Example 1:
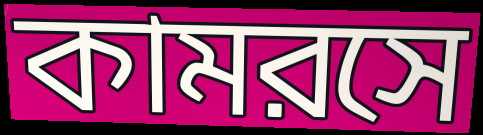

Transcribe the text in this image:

কামরসে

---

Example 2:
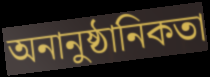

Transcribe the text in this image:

অনানুষ্ঠানিকতা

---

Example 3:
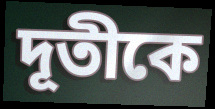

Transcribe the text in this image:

দূতীকে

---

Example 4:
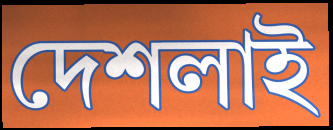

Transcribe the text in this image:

দেশলাই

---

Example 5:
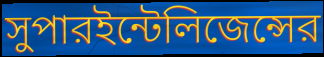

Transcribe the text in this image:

সুপারইন্টেলিজেন্সের